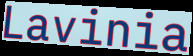
Lavinia